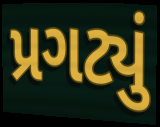
પ્રગટ્યું